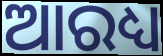
ଆରଧ୍ୟ